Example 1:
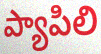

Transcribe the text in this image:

ప్యాపిలి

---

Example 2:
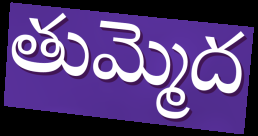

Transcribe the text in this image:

తుమ్మెద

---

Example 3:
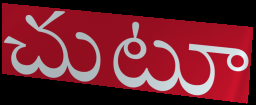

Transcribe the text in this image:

చుటూ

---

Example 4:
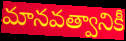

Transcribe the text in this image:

మానవత్వానికీ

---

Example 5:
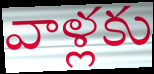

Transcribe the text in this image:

వాళ్లకు